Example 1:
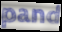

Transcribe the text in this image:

pand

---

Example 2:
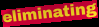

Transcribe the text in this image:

eliminating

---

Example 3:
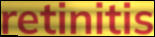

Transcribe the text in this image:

retinitis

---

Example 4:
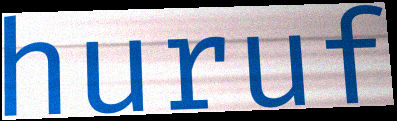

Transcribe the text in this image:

huruf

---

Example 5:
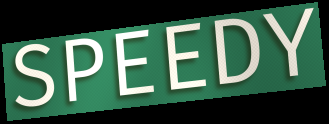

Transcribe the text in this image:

SPEEDY